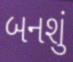
બનશું